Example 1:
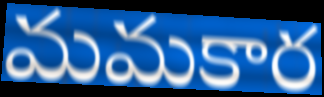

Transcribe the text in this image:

మమకార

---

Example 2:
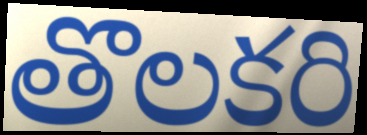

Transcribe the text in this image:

తొలకరి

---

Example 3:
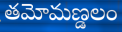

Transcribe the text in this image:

తమోమణ్డలం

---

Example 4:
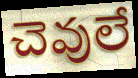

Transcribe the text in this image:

చెవులే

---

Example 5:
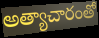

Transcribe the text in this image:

అత్యాచారంతో